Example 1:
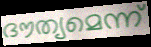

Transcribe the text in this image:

ദൗത്യമെന്ന്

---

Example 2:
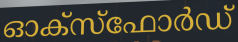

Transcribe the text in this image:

ഓക്സ്ഫോർഡ്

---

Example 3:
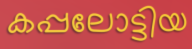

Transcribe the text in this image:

കപ്പലോട്ടിയ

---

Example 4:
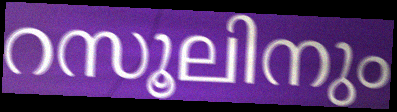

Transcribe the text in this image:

റസൂലിനും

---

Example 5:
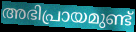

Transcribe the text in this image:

അഭിപ്രായമുണ്ട്